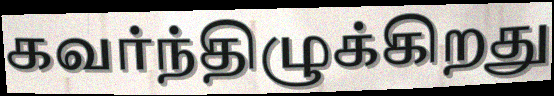
கவர்ந்திழுக்கிறது